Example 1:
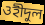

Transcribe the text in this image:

ওহীদুল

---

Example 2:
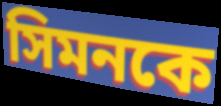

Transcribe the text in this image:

সিমনকে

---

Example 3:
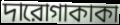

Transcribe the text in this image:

দারোগাকাকা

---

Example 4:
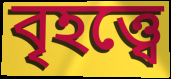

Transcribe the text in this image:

বৃহত্ত্বে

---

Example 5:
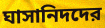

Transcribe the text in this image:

ঘাসানিদদের